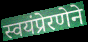
स्वयंप्रेरणेने